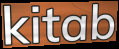
kitab